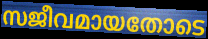
സജീവമായതോടെ